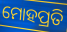
ମୋହପ୍ରତି